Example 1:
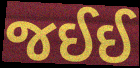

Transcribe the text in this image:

જઈઈ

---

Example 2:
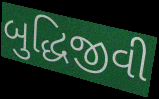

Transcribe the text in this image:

બુદ્ધિજીવી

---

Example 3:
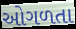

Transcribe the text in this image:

ઓગળતા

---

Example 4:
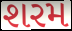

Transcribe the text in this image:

શરમ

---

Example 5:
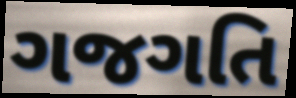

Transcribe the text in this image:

ગજગતિ